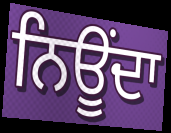
ਨਿਊਂਦਾ